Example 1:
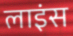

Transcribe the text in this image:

लाइंस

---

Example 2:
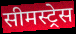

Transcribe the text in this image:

सीमस्ट्रेस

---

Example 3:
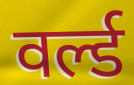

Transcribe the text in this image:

वर्ल्ड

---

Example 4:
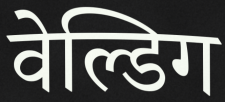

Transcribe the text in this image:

वेल्डिग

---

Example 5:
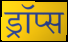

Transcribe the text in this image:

ड्रॉप्स